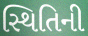
સ્થિતિની